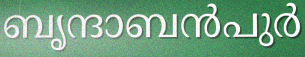
ബൃന്ദാബൻപുർ